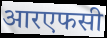
आरएफसी